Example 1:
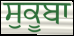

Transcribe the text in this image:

ਸੁਕੂਬਾ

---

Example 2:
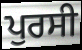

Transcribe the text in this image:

ਪੁਰਸੀ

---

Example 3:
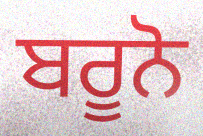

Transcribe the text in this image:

ਬਰੂਨੋ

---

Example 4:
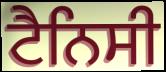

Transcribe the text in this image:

ਟੈਨਿਸੀ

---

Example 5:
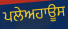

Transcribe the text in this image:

ਪਲੇਅਹਾਊਸ